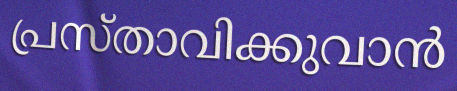
പ്രസ്താവിക്കുവാൻ